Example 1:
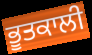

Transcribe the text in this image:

ਭੂਤਕਾਲੀ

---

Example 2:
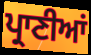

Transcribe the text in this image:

ਪ੍ਰਾਣੀਆਂ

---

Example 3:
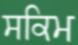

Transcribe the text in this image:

ਸਕਿਮ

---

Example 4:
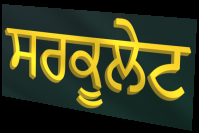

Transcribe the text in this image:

ਸਰਕੂਲੇਟ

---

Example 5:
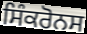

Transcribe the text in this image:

ਸਿੰਕਰੋਨਸ